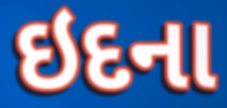
ઇદના